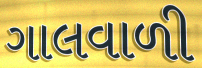
ગાલવાળી